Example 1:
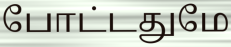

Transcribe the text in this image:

போட்டதுமே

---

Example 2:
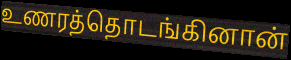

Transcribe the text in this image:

உணரத்தொடங்கினான்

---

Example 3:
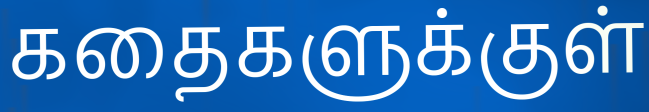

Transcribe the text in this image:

கதைகளுக்குள்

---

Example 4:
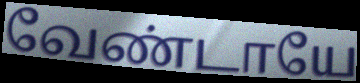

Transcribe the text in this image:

வேண்டாயே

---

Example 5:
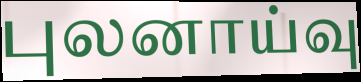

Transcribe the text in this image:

புலனாய்வு